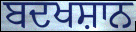
ਬਦਖਸ਼ਾਨ